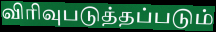
விரிவுபடுத்தப்படும்